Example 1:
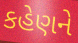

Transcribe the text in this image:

કહેણને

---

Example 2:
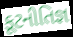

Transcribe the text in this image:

કૂટનીતિજ્ઞ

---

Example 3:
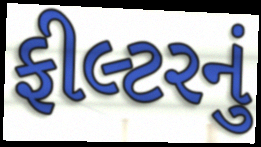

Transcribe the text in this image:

ફીલ્ટરનું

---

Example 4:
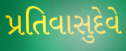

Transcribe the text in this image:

પ્રતિવાસુદેવે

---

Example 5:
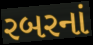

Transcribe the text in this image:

રબરનાં